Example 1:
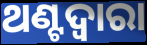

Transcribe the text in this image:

ଥଣ୍ଟଦ୍ୱାରା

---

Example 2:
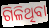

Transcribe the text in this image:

ଗିଳିଥିବା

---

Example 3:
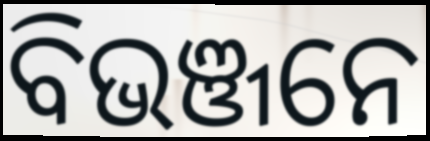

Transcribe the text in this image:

ବିଭଞ୍ଜନେ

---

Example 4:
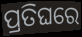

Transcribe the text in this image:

ପ୍ରତିଘରେ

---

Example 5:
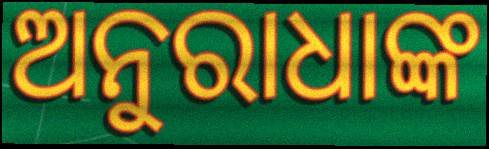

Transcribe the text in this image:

ଅନୁରାଧାଙ୍କ